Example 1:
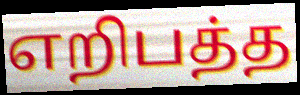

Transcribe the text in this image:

எறிபத்த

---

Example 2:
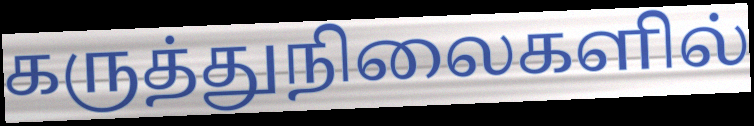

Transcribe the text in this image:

கருத்துநிலைகளில்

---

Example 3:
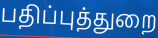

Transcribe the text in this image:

பதிப்புத்துறை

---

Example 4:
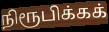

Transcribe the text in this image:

நிரூபிக்கக்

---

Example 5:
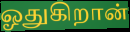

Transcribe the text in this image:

ஓதுகிறான்